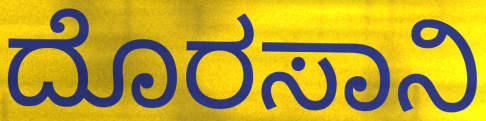
ದೊರಸಾನಿ